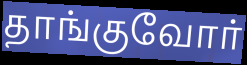
தாங்குவோர்